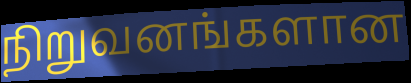
நிறுவனங்களான